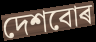
দেশবোৰ